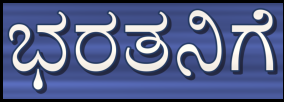
ಭರತನಿಗೆ